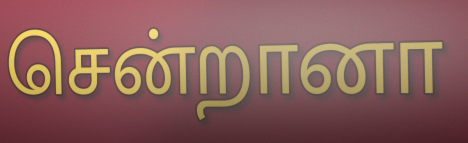
சென்றானா